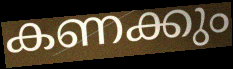
കണക്കും